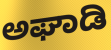
ಅಘಾಡಿ